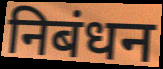
निबंधन